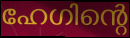
ഹേഗിന്റെ